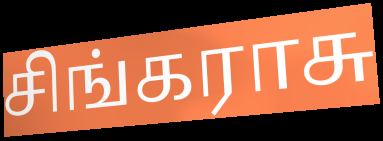
சிங்கராசு